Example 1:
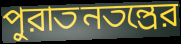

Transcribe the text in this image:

পুরাতনতন্ত্রের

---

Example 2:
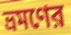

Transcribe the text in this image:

ভ্রমণের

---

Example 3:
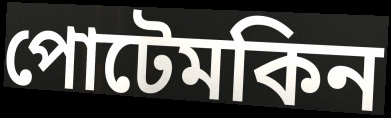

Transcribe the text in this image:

পোটেমকিন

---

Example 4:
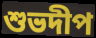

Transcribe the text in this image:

শুভদীপ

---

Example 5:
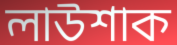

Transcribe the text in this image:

লাউশাক